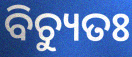
ବିଚ୍ୟୁତଃ